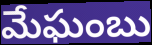
మేఘంబు